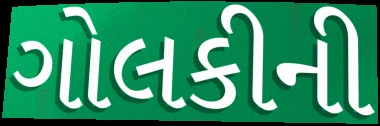
ગોલકીની